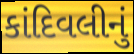
કાંદિવલીનું